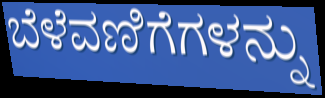
ಬೆಳೆವಣಿಗೆಗಳನ್ನು